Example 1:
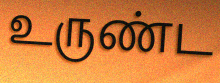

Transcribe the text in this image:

உருண்ட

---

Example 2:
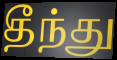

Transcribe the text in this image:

தீந்து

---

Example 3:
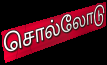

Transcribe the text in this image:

சொல்லோடு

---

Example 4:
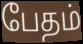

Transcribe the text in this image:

பேதம்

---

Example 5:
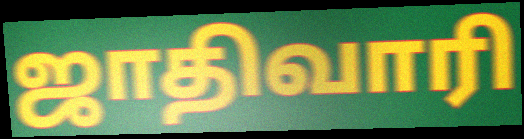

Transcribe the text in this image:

ஜாதிவாரி